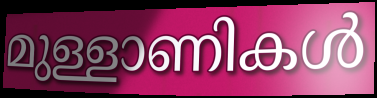
മുള്ളാണികൾ